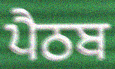
ਪੈਠਬ